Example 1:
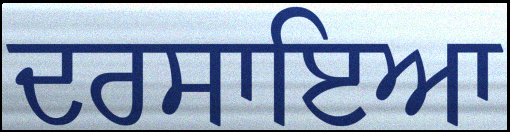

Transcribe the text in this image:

ਦਰਸਾਇਆ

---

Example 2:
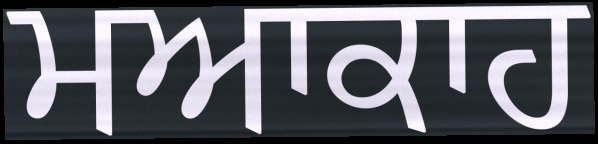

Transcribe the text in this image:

ਮਆਕਾਹ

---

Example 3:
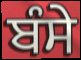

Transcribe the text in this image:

ਬੰਸੇ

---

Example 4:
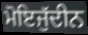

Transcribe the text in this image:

ਮੋਇਜੁੱਦੀਨ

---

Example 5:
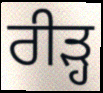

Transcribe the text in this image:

ਰੀੜ੍ਹ